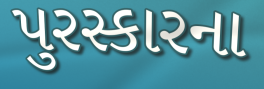
પુરસ્કારના